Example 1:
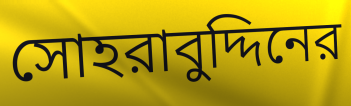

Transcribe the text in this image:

সোহরাবুদ্দিনের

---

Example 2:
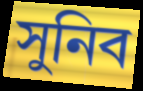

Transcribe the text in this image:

সুনিব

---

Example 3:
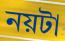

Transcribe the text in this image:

নয়টা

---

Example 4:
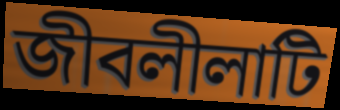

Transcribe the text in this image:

জীবলীলাটি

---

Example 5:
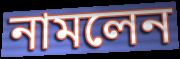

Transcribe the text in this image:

নামলেন